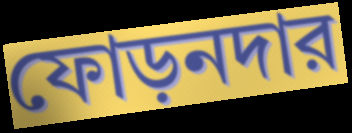
ফোড়নদার